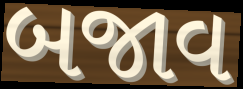
બજાવ